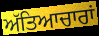
ਅੱਤਿਆਚਾਰਾਂ